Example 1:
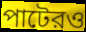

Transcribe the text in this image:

পাটেরও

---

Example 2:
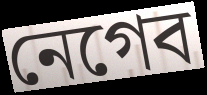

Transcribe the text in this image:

নেগেব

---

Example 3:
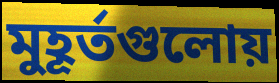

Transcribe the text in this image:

মুহূর্তগুলোয়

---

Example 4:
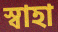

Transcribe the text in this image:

স্বাহা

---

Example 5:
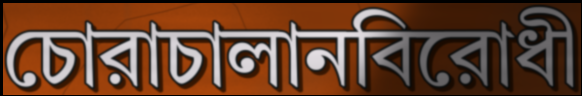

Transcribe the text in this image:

চোরাচালানবিরোধী